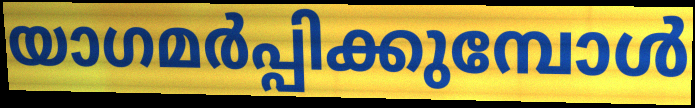
യാഗമർപ്പിക്കുമ്പോൾ